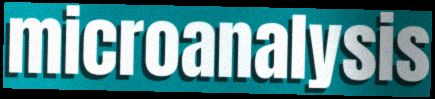
microanalysis